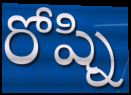
రోష్ని